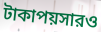
টাকাপয়সারও